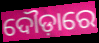
ଦୌଡ଼ାରେ